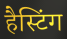
हैस्टिंग